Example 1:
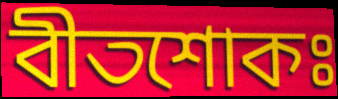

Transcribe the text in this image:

বীতশোকঃ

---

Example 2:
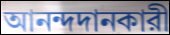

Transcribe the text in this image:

আনন্দদানকারী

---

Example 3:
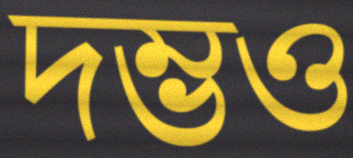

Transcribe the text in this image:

দম্ভও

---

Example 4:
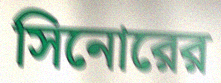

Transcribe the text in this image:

সিনোরের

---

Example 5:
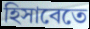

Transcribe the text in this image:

হিসাবেতে